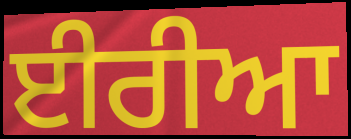
ਈਰੀਆ